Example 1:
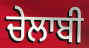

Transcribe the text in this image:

ਚੇਲਾਬੀ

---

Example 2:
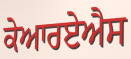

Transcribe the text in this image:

ਕੇਆਰਏਐਸ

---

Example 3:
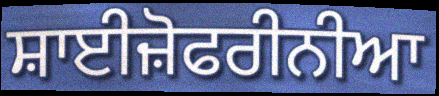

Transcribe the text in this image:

ਸ਼ਾਈਜ਼ੋਫਰੀਨੀਆ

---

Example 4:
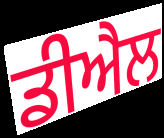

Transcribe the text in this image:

ਡੀਐਲ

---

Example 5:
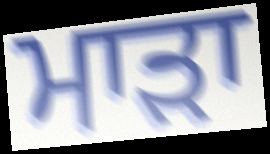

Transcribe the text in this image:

ਮਾਡ਼ਾ